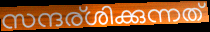
സന്ദര്ശിക്കുന്നത്